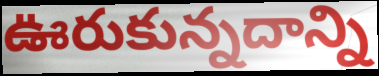
ఊరుకున్నదాన్ని